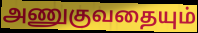
அணுகுவதையும்